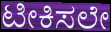
ಟೀಕಿಸಲೇ